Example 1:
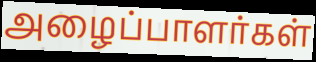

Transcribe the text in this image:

அழைப்பாளர்கள்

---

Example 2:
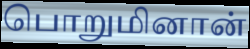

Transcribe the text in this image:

பொறுமினான்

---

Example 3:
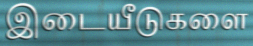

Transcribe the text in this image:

இடையீடுகளை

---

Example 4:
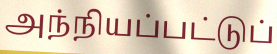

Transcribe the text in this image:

அந்நியப்பட்டுப்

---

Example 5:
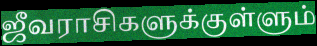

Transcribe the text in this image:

ஜீவராசிகளுக்குள்ளும்